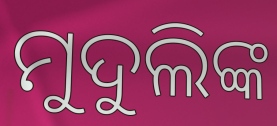
ମୁଦୁଲିଙ୍କ